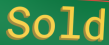
Sold